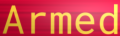
Armed